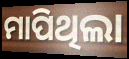
ମାପିଥିଲା